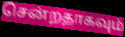
சென்றதாகவும்